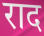
राद